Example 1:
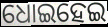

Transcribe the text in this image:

ଧୋଇହେଇ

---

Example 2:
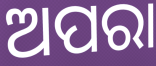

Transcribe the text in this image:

ଅପରା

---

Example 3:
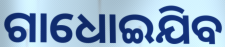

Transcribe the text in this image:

ଗାଧୋଇଯିବ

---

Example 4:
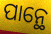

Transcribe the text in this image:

ପାନ୍ଥେ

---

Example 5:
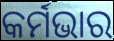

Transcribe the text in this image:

କର୍ମଭାର